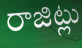
రాజిట్లు